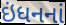
ઇંધનનાં